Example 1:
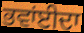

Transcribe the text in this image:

ਭਵਾਂਈਦਾ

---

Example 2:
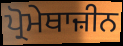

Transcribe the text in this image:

ਪ੍ਰੋਮੇਥਾਜ਼ੀਨ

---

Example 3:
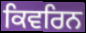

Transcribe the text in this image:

ਕਿਵਰਿਨ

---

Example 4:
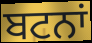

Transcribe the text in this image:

ਬਟਨਾਂ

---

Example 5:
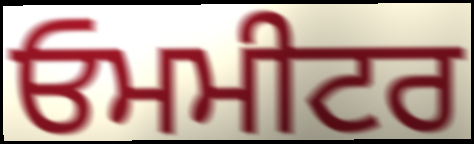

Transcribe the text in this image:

ਓਮਮੀਟਰ